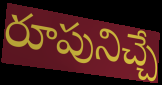
రూపునిచ్చే